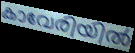
കാവേരിയിൽ